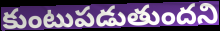
కుంటుపడుతుందని